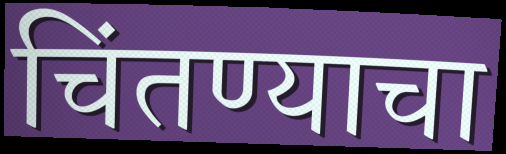
चिंतण्याचा